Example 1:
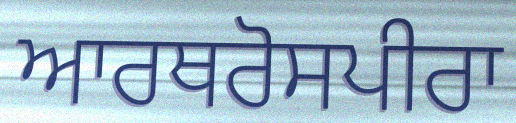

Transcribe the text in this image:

ਆਰਥਰੋਸਪੀਰਾ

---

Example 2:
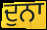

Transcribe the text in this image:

ਦੁਨਾ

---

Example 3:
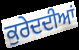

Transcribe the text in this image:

ਕੁਰੇਦਦੀਆਂ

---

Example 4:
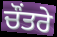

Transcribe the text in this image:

ਚੌਂਤਰੇ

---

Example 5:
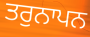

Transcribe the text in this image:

ਤਰੁਨਾਪਨ